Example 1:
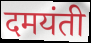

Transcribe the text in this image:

दमयंती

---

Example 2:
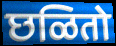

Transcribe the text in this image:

छळितो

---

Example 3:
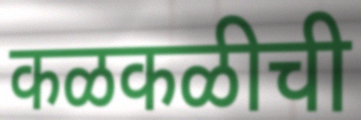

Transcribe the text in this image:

कळकळीची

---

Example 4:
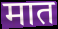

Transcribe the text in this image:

मात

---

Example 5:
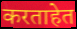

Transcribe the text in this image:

करताहेत